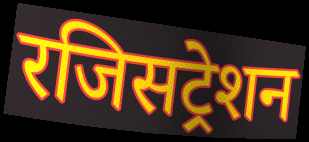
रजिसट्रेशन